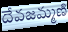
దేవజమ్మణి